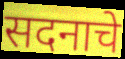
सदनाचे